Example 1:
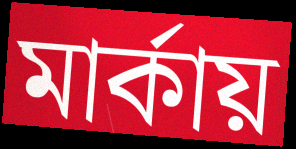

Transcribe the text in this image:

মার্কায়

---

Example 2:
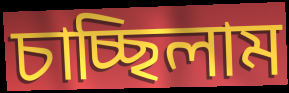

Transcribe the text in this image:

চাচ্ছিলাম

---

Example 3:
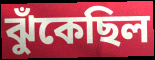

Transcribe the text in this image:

ঝুঁকেছিল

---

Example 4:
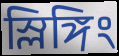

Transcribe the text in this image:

স্লিঙ্গিং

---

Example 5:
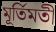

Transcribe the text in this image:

মূর্তিমতী